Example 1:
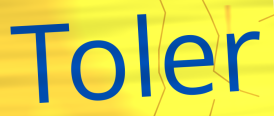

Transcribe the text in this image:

Toler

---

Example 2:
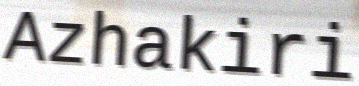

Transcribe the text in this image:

Azhakiri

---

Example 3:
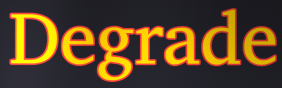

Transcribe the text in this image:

Degrade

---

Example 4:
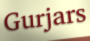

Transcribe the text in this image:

Gurjars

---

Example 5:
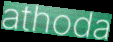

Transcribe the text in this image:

athoda